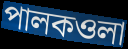
পালকওলা